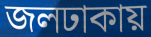
জলঢাকায়